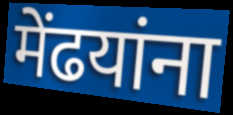
मेंढयांना